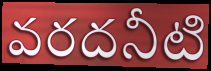
వరదనీటి